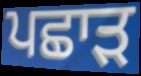
ਪਛਾੜ